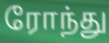
ரோந்து